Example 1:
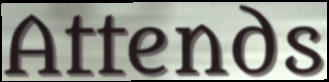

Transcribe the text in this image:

Attends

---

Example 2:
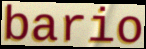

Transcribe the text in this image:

bario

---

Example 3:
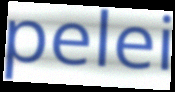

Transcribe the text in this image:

pelei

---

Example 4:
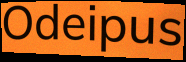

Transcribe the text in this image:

Odeipus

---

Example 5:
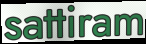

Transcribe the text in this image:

sattiram